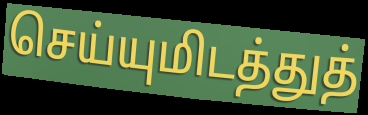
செய்யுமிடத்துத்